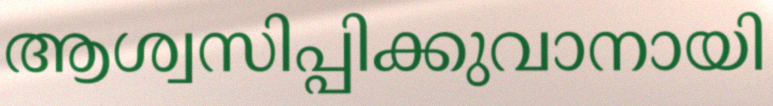
ആശ്വസിപ്പിക്കുവാനായി